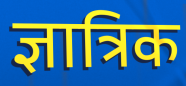
ज्ञात्रिक